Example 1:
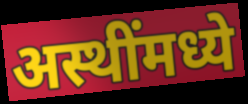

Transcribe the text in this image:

अस्थींमध्ये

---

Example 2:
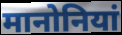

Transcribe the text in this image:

मानोनियां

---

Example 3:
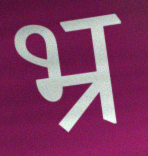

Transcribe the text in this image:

भ्र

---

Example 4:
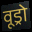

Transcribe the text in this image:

वूड्रो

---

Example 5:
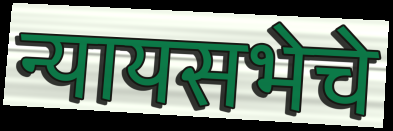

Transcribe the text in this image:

न्यायसभेचे